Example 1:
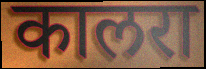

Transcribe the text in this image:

कालरा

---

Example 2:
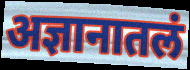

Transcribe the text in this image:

अज्ञानातलं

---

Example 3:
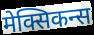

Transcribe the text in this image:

मेक्सिकन्स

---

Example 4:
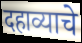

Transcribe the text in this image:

दहाव्याचे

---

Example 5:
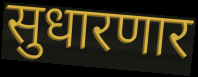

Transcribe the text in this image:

सुधारणार